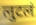
लुटलं